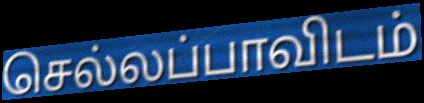
செல்லப்பாவிடம்